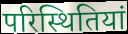
परिस्थितियां